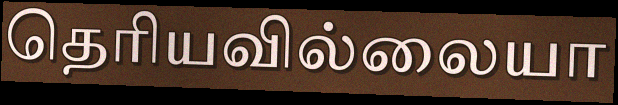
தெரியவில்லையா